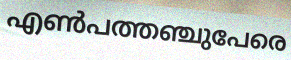
എൺപത്തഞ്ചുപേരെ